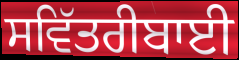
ਸਵਿੱਤਰੀਬਾਈ